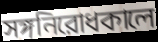
সঙ্গনিরোধকালে